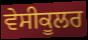
ਵੇਸੀਕੂਲਰ